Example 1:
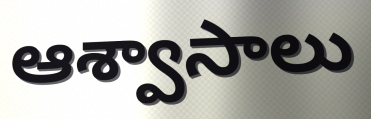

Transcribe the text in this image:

ఆశ్వాసాలు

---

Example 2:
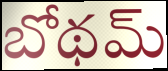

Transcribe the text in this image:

బోథమ్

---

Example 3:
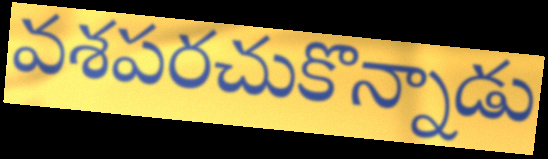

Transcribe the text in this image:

వశపరచుకొన్నాడు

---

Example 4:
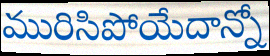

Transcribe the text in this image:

మురిసిపోయేదాన్నో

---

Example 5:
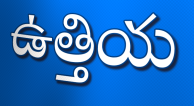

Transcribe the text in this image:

ఉత్తియ